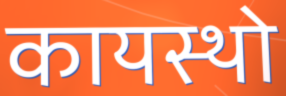
कायस्थो